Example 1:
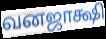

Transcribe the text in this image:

வனஜாக்ஷி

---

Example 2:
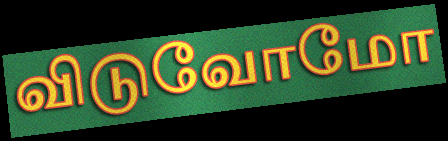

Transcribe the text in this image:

விடுவோமோ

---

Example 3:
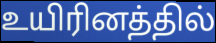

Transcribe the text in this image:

உயிரினத்தில்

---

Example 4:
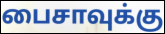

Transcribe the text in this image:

பைசாவுக்கு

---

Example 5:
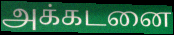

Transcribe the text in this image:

அக்கடனை